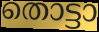
തൊട്ടാ